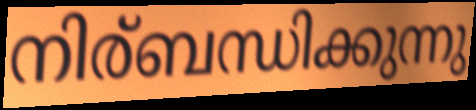
നിര്ബന്ധിക്കുന്നു